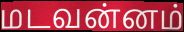
மடவன்னம்